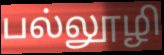
பல்லூழி